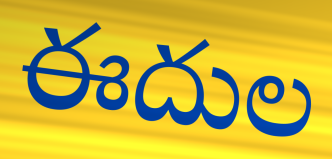
ఈదుల